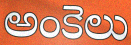
అంకెలు